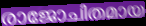
രാജോചിതമായ